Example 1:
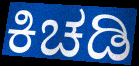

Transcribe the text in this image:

ಕಿಚಡಿ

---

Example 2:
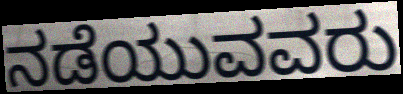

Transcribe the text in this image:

ನಡೆಯುವವರು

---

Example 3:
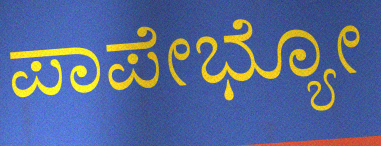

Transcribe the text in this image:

ಪಾಪೇಭ್ಯೋ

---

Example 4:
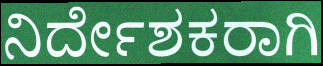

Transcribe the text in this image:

ನಿರ್ದೇಶಕರಾಗಿ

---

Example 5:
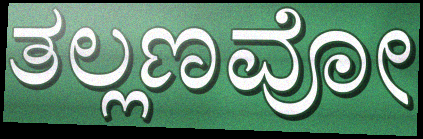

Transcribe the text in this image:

ತಲ್ಲಣವೋ